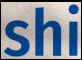
shi